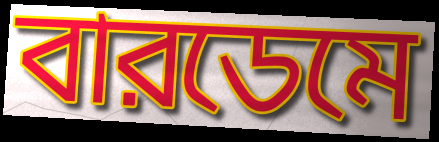
বারডেমে